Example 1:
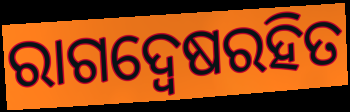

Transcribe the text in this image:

ରାଗଦ୍ୱେଷରହିତ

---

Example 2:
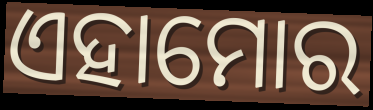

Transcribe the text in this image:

ଏହାମୋର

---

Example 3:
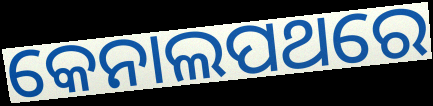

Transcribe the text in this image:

କେନାଲପଥରେ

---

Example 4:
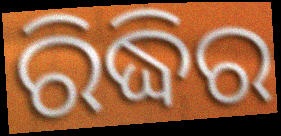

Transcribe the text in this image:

ରିଦ୍ଧିର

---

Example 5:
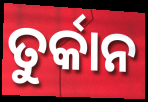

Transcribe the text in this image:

ତୁର୍କାନ